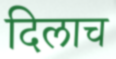
दिलाच